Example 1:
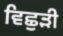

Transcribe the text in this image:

ਵਿਛੁੜੀ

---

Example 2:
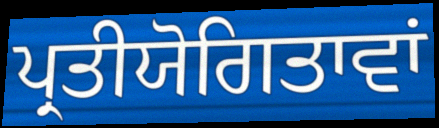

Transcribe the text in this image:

ਪ੍ਰਤੀਯੋਗਿਤਾਵਾਂ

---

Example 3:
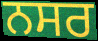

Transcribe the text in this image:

ਨਸਰ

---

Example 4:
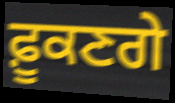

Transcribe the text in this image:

ਫ਼ੂਕਣਗੇ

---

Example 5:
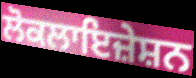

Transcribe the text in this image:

ਲੋਕਲਾਇਜ਼ੇਸ਼ਨ